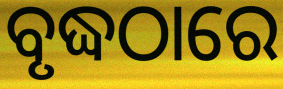
ବୃଦ୍ଧଠାରେ